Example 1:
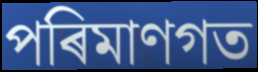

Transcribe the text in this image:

পৰিমাণগত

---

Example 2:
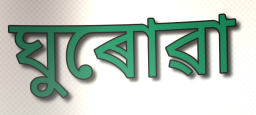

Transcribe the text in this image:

ঘুৰোৱা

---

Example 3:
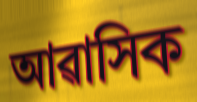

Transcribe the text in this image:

আৱাসিক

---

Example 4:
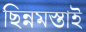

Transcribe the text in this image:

ছিন্নমস্তাই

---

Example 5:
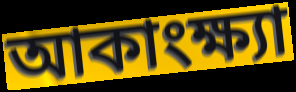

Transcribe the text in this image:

আকাংক্ষ্যা